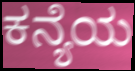
ಕನ್ಯೆಯ